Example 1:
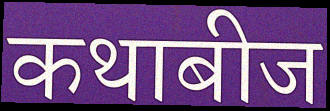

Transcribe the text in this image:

कथाबीज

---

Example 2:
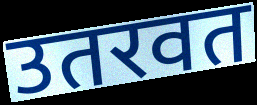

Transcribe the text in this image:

उतरवत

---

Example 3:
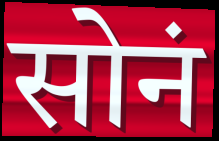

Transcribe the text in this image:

सोनं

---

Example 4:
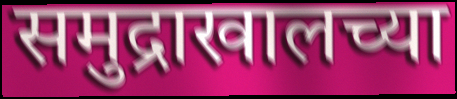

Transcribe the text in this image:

समुद्राखालच्या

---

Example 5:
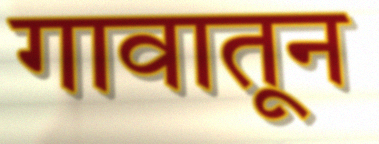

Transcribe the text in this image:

गावातून